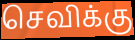
செவிக்கு